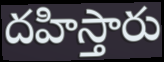
దహిస్తారు